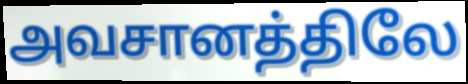
அவசானத்திலே